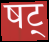
षट्